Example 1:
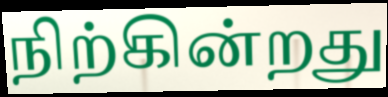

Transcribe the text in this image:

நிற்கின்றது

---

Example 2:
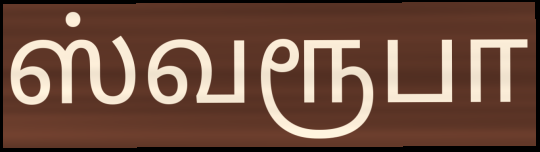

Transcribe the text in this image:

ஸ்வரூபா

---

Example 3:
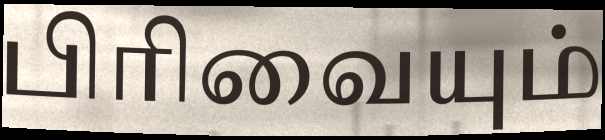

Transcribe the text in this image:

பிரிவையும்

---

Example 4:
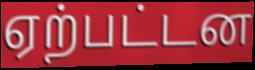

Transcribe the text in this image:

ஏற்பட்டன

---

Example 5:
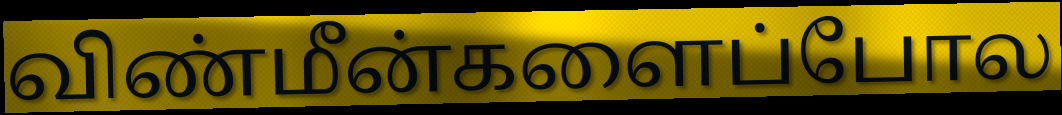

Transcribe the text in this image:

விண்மீன்களைப்போல